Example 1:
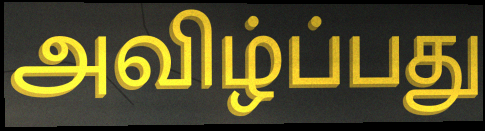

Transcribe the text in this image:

அவிழ்ப்பது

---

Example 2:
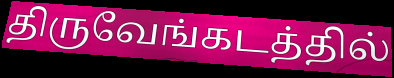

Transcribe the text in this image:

திருவேங்கடத்தில்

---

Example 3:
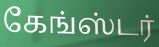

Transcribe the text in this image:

கேங்ஸ்டர்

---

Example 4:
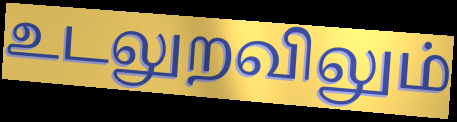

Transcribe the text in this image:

உடலுறவிலும்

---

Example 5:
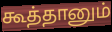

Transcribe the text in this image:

கூத்தானும்